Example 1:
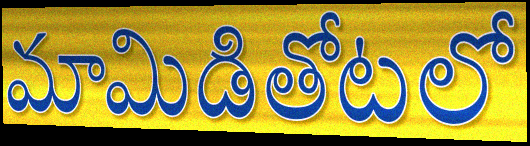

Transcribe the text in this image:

మామిడితోటలో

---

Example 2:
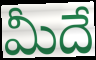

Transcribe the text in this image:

మీదే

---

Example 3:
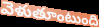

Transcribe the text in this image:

వెళుతూంటుంది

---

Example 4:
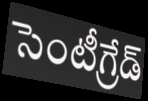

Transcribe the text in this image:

సెంటీగ్రేడ్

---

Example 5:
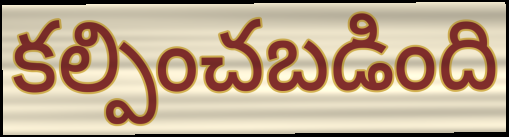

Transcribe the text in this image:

కల్పించబడింది